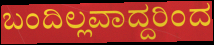
ಬಂದಿಲ್ಲವಾದ್ದರಿಂದ